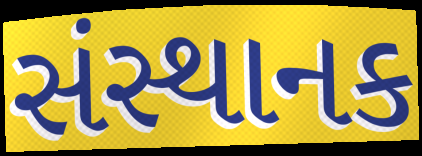
સંસ્થાનક